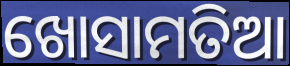
ଖୋସାମତିଆ